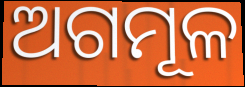
ଅଗମୂଳ